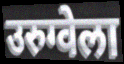
उरुग्वेला